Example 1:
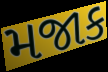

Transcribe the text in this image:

મજાક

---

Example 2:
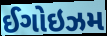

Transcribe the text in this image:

ઈગોઇઝમ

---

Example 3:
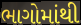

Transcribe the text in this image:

ભાગોમાંથી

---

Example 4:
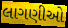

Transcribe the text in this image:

લાગણીઓ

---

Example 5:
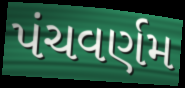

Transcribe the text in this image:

પંચવર્ણમ